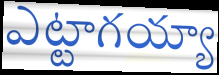
ఎట్టాగయ్యా